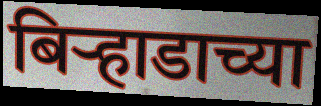
बिऱ्हाडाच्या